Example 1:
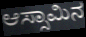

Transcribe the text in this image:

ಆಸ್ಸಾಮಿನ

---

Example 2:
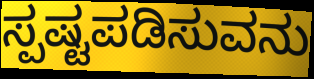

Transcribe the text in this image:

ಸ್ಪಷ್ಟಪಡಿಸುವನು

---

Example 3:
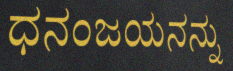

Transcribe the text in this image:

ಧನಂಜಯನನ್ನು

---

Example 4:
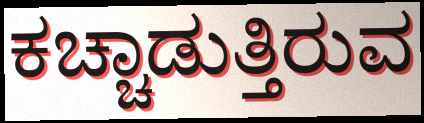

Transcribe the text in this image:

ಕಚ್ಚಾಡುತ್ತಿರುವ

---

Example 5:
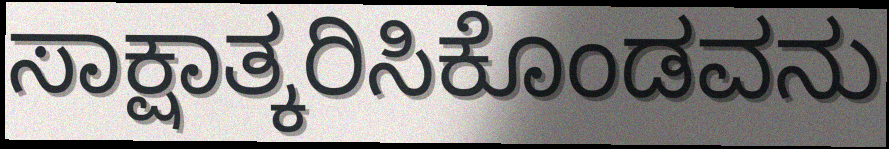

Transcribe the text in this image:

ಸಾಕ್ಷಾತ್ಕರಿಸಿಕೊಂಡವನು